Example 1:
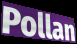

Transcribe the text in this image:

Pollan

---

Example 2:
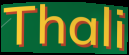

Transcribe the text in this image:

Thali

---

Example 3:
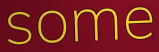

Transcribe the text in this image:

some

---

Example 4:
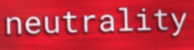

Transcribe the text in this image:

neutrality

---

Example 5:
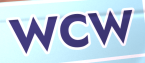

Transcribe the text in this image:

WCW